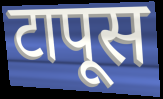
टापूस